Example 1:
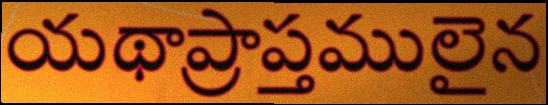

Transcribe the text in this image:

యథాప్రాప్తములైన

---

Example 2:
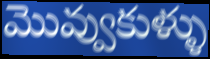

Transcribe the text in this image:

మొవ్వుకుళ్ళు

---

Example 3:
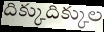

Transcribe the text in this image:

దిక్కుదిక్కుల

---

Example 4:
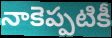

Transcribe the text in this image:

నాకెప్పటికీ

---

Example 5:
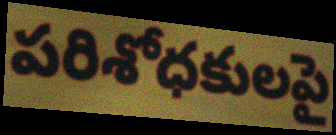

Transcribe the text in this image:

పరిశోధకులపై